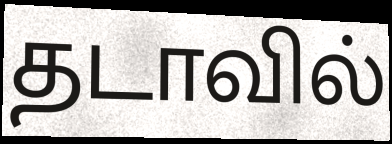
தடாவில்